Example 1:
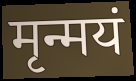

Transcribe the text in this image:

मृन्मयं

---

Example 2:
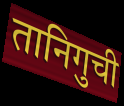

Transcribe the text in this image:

तानिगुची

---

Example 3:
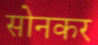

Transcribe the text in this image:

सोनकर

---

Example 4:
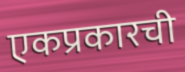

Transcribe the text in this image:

एकप्रकारची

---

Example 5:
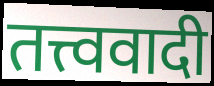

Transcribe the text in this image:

तत्त्ववादी